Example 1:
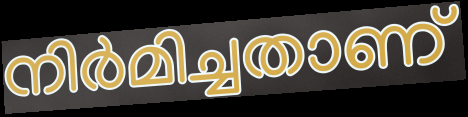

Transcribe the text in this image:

നിർമിച്ചതാണ്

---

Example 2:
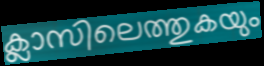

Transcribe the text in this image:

ക്ലാസിലെത്തുകയും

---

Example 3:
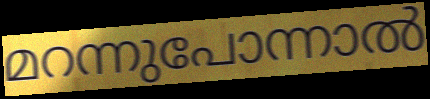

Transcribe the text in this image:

മറന്നുപോന്നാൽ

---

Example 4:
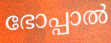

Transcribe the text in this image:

ഭോപ്പാൽ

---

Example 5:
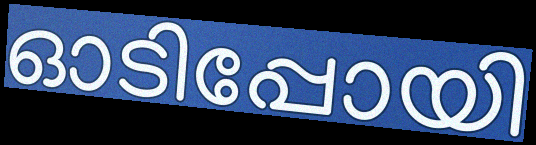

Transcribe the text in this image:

ഓടിപ്പോയി